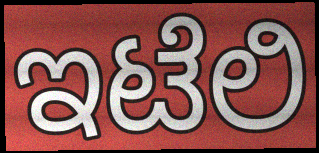
ಇಟೆಲಿ